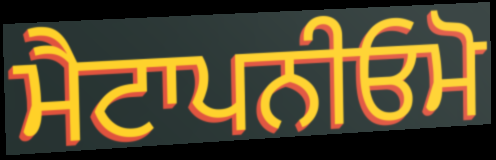
ਮੈਟਾਪਨੀਓਮੋ